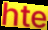
hte